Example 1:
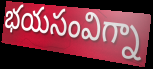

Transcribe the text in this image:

భయసంవిగ్నా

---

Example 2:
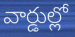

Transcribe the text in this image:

వార్డుల్లో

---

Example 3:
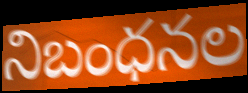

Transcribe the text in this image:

నిబంధనల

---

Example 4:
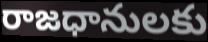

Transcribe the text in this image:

రాజధానులకు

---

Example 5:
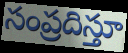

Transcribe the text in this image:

సంప్రదిస్తూ